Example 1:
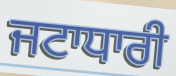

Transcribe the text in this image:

ਜਟਾਧਾਰੀ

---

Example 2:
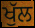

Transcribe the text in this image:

ਖੁੱਲ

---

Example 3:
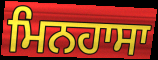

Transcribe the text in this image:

ਮਿਨਹਾਸਾ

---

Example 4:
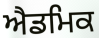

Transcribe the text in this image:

ਐਡਮਿਕ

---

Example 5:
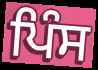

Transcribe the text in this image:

ਪਿੰਸ